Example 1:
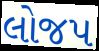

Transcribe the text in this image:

લોજપ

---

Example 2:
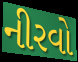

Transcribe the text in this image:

નીરવો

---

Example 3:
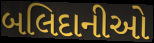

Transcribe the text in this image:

બલિદાનીઓ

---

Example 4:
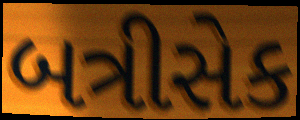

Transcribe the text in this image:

બત્રીસેક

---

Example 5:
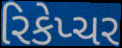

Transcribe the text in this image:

રિકેપ્ચર